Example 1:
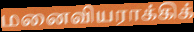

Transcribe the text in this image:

மனைவியராக்கிக்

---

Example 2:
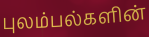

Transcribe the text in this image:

புலம்பல்களின்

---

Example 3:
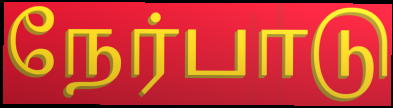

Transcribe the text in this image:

நேர்பாடு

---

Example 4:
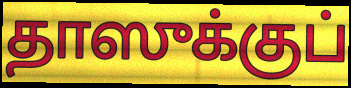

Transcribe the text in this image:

தாஸுக்குப்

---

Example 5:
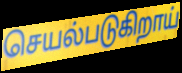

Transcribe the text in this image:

செயல்படுகிறாய்